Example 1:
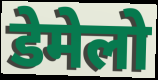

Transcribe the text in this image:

डेमेलो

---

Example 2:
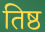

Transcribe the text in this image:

तिष्ठ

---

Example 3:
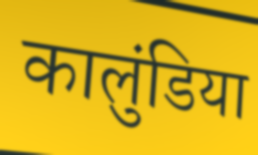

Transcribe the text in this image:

कालुंडिया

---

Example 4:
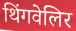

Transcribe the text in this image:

थिंगवेलिर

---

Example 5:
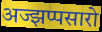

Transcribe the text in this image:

अज्झप्पसारो